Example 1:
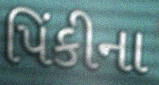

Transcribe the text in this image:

પિંકીના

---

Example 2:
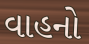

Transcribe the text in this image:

વાહનો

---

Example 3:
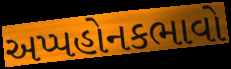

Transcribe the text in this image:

અપ્પહોનકભાવો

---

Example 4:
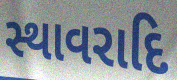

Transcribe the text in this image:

સ્થાવરાદિ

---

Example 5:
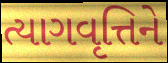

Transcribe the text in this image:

ત્યાગવૃત્તિને